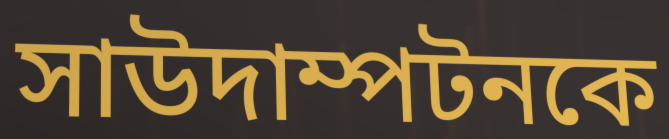
সাউদাম্পটনকে